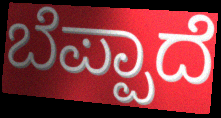
ಬೆಪ್ಪಾದೆ